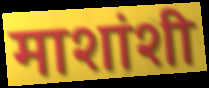
माशांशी